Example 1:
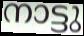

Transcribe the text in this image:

നാട്ടു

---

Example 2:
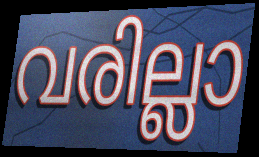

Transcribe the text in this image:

വരില്ലാ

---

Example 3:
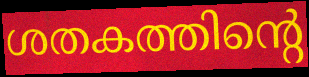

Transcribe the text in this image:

ശതകത്തിന്റെ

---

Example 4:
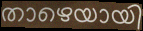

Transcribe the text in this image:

താഴെയായി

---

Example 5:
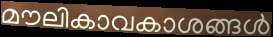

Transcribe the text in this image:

മൗലികാവകാശങ്ങൾ